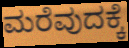
ಮರೆವುದಕ್ಕೆ